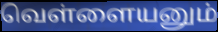
வெள்ளையனும்